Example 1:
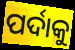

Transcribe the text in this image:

ପର୍ଦାକୁ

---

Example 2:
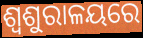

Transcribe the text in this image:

ଶ୍ୱଶୁରାଳୟରେ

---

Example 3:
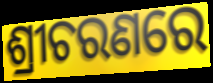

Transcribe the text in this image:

ଶ୍ରୀଚରଣରେ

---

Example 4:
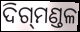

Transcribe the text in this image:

ଦିଗ୍‌ମଣ୍ଡଳ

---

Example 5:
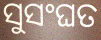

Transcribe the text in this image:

ସୁସଂଘତ